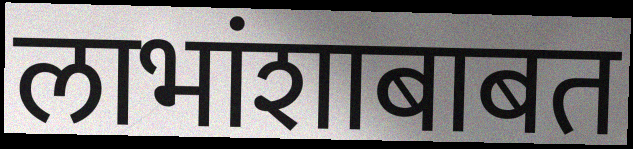
लाभांशाबाबत